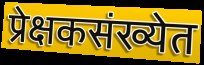
प्रेक्षकसंख्येत